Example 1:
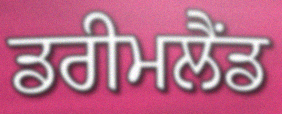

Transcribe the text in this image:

ਡਰੀਮਲੈਂਡ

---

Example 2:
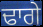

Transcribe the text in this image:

ਢਾਗੇ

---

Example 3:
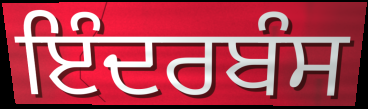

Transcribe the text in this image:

ਇੰਦਰਬੰਸ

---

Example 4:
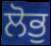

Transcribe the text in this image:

ਲੋਭੁ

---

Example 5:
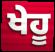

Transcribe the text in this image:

ਖੇਹੂ